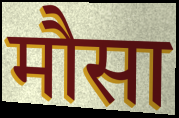
मौसा